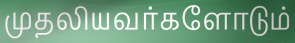
முதலியவர்களோடும்